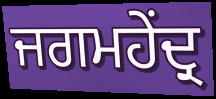
ਜਗਮਹੇਂਦ੍ਰ